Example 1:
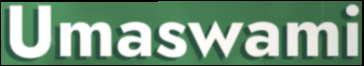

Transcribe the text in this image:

Umaswami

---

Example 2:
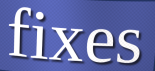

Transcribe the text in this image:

fixes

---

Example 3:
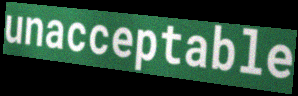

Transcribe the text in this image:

unacceptable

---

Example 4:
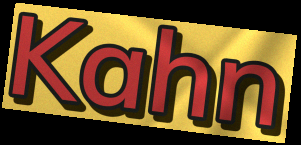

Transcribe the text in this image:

Kahn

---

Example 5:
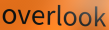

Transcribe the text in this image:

overlook